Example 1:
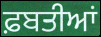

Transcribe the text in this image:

ਫ਼ਬਤੀਆਂ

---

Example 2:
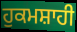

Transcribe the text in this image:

ਹੁਕਮਸ਼ਾਹੀ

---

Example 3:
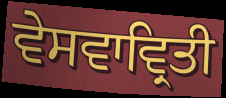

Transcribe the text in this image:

ਵੇਸਵਾਵ੍ਰਿਤੀ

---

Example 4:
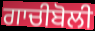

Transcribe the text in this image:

ਗਾਚੀਬੋਲੀ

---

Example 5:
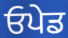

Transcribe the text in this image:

ਓਪੇਡ